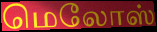
மெலோஸ்